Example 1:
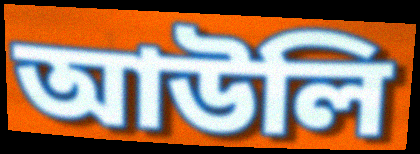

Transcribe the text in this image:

আউলি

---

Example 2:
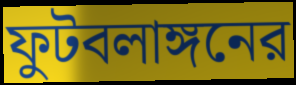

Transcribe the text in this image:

ফুটবলাঙ্গনের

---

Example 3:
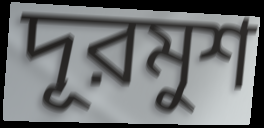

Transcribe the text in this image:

দূরমুশ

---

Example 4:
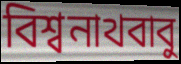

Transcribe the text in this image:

বিশ্বনাথবাবু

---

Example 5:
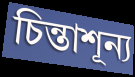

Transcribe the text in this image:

চিন্তাশূন্য